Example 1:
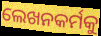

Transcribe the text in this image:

ଲେଖନକର୍ମକୁ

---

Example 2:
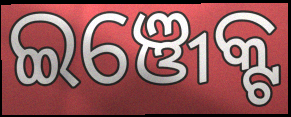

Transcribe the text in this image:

ଇଞ୍ଜେକ୍ଟ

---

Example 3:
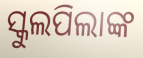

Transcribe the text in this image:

ସ୍କୁଲପିଲାଙ୍କ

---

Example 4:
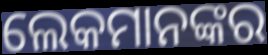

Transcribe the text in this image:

ଲେକମାନଙ୍କର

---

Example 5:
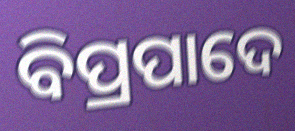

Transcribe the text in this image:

ବିପ୍ରପାଦେ